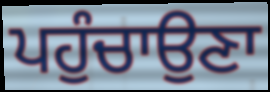
ਪਹੁੰਚਾਉਣਾ